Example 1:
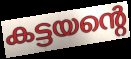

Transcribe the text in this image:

കട്ടയന്റെ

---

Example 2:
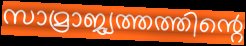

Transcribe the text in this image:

സാമ്രാജ്യത്തത്തിന്റെ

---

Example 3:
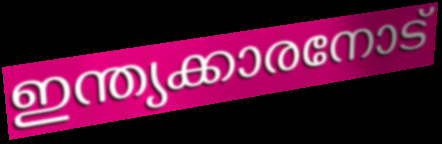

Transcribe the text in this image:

ഇന്ത്യക്കാരനോട്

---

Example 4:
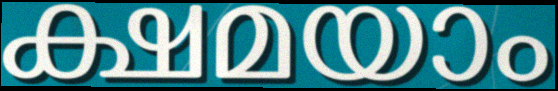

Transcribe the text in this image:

ക്ഷമയാം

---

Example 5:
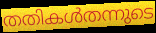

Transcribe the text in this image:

തതികൾതന്നുടെ